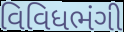
વિવિધભંગી